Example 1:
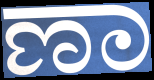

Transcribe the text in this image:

ಣಾ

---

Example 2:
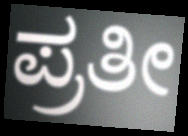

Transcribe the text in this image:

ಪ್ರತೀ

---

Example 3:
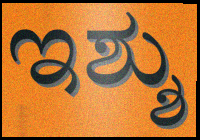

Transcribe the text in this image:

ಇಶ್ಶು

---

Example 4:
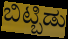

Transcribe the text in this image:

ಬಿಟ್ಬಿಡು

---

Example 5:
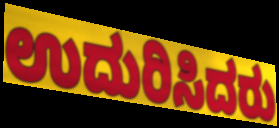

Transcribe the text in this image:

ಉದುರಿಸಿದರು